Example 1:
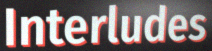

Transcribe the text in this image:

Interludes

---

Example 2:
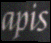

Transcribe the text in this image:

apis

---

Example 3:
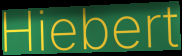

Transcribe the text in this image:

Hiebert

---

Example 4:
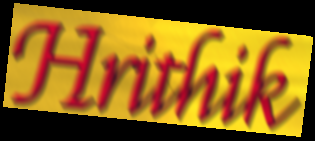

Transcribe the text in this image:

Hrithik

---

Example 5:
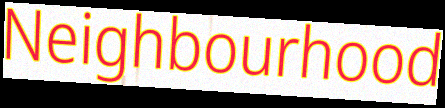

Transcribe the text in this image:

Neighbourhood